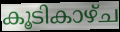
കൂടികാഴ്ച